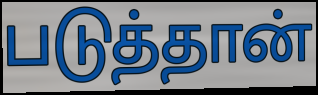
படுத்தான்